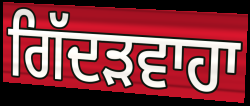
ਗਿੱਦੜਵਾਹਾ